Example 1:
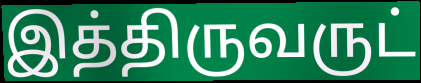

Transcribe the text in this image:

இத்திருவருட்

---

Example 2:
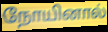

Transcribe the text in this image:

நோயினால்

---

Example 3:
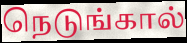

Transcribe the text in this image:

நெடுங்கால்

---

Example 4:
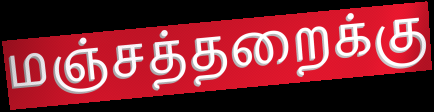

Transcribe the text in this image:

மஞ்சத்தறைக்கு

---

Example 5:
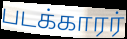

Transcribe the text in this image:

படக்காரர்